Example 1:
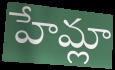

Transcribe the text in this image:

హేమ్లా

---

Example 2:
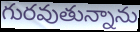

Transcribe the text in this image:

గురవుతున్నాను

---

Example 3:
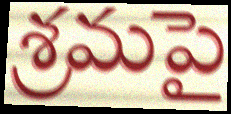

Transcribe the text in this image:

శ్రమపై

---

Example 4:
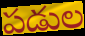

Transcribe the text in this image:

పడుల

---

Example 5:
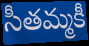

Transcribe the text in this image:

సీతమ్మకీ